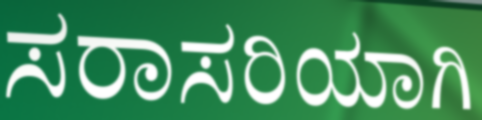
ಸರಾಸರಿಯಾಗಿ